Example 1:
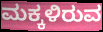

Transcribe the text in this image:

ಮಕ್ಕಳಿರುವ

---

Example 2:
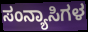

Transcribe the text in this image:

ಸಂನ್ಯಾಸಿಗಳ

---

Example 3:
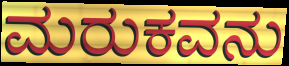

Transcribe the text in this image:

ಮರುಕವನು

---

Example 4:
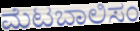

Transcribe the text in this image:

ಮೆಟಬಾಲಿಸಂ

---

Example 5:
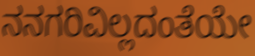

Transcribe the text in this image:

ನನಗರಿವಿಲ್ಲದಂತೆಯೇ